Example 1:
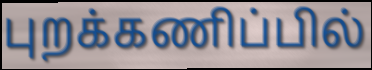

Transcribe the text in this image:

புறக்கணிப்பில்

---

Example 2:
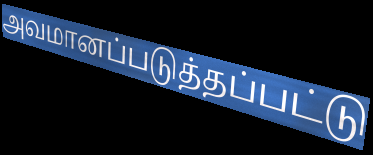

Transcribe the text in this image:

அவமானப்படுத்தப்பட்டு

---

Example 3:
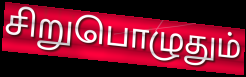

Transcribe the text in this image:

சிறுபொழுதும்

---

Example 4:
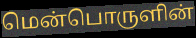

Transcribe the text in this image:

மென்பொருளின்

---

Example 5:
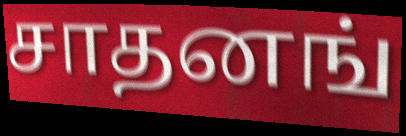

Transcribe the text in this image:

சாதனங்